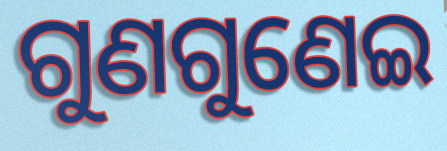
ଗୁଣଗୁଣେଇ